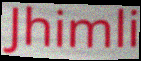
Jhimli